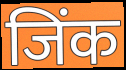
जिंक